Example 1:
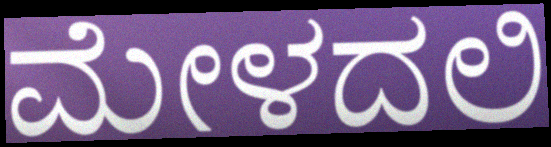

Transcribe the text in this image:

ಮೇಳದಲಿ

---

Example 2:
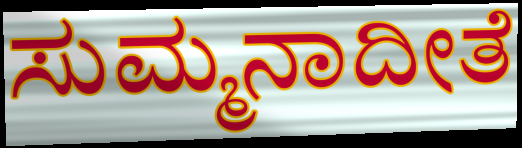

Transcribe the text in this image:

ಸುಮ್ಮನಾದೀತೆ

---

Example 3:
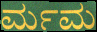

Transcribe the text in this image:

ರ್ಮಮ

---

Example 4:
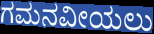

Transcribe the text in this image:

ಗಮನವೀಯಲು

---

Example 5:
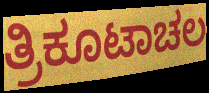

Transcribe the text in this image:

ತ್ರಿಕೂಟಾಚಲ